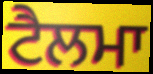
ਟੈਲਮਾ